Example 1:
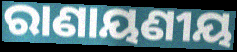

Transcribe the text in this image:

ରାଣାୟଣୀୟ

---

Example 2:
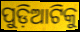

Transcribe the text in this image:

ପୁଡ଼ିଆଟିକୁ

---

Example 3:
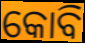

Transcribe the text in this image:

କୋବି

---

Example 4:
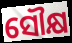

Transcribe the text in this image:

ସୌକ୍ଷ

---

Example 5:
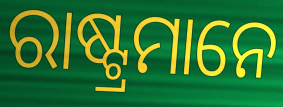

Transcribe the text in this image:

ରାଷ୍ଟ୍ରମାନେ